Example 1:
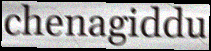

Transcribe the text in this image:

chenagiddu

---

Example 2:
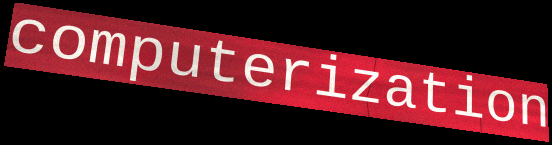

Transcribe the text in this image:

computerization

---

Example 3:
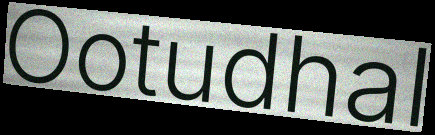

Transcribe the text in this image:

Ootudhal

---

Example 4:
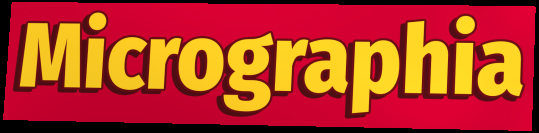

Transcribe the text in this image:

Micrographia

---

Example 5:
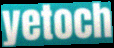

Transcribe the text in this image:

yetoch